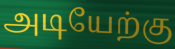
அடியேற்கு